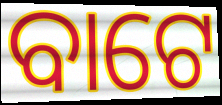
ବାଟେ